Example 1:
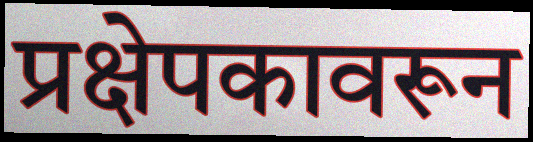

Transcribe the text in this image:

प्रक्षेपकावरून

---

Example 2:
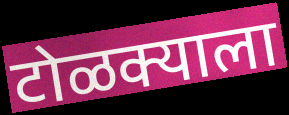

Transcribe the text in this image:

टोळक्याला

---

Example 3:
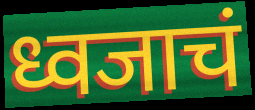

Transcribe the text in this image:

ध्वजाचं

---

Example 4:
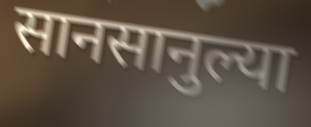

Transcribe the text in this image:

सानसानुल्या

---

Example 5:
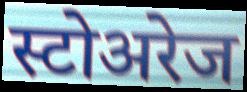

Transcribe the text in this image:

स्टोअरेज